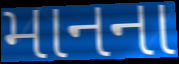
માનના